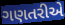
ગણતરીએ